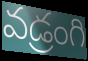
వడ్రంగి